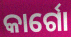
କାର୍ଗୋ